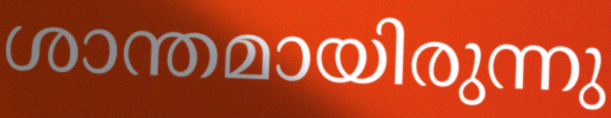
ശാന്തമായിരുന്നു